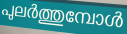
പുലർത്തുമ്പോൾ